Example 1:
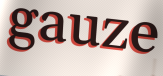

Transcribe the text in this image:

gauze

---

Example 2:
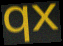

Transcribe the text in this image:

qx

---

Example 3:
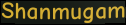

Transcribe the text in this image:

Shanmugam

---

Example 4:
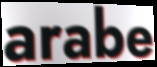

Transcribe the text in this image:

arabe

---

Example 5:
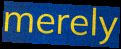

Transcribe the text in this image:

merely